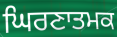
ਘਿਰਣਾਤਮਕ